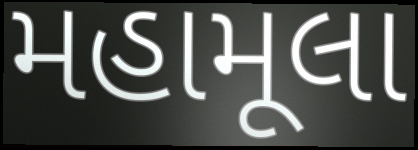
મહામૂલા